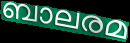
ബാലരമ